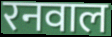
रनवाल